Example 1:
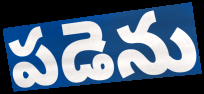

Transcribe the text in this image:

పడెను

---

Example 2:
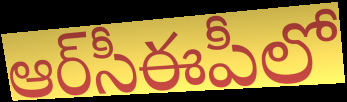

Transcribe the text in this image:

ఆర్‌సీఈపీలో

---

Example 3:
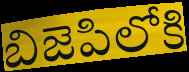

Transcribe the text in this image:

బిజెపిలోకి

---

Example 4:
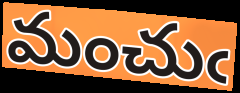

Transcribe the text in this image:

మంచుఁ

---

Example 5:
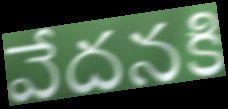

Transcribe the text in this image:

వేదనకి